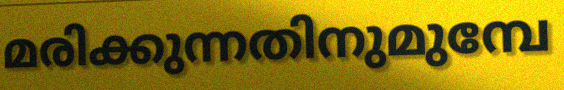
മരിക്കുന്നതിനുമുമ്പേ